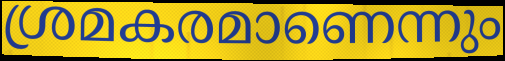
ശ്രമകരമാണെന്നും